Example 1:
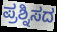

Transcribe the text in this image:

ಪ್ರಶ್ನಿಸದ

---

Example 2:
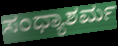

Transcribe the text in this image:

ಸಂಧ್ಯಾಶರ್ಮ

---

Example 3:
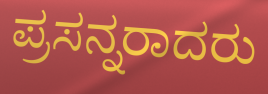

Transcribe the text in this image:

ಪ್ರಸನ್ನರಾದರು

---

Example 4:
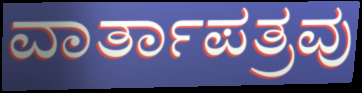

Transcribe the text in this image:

ವಾರ್ತಾಪತ್ರವು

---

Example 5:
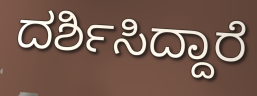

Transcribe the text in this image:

ದರ್ಶಿಸಿದ್ದಾರೆ